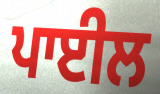
ਪਾਈਲ